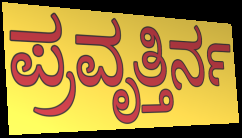
ಪ್ರವೃತ್ತಿರ್ನ